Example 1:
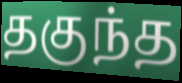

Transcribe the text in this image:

தகுந்த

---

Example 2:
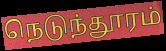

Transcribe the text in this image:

நெடுந்தூரம்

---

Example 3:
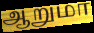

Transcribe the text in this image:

ஆறுமா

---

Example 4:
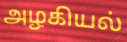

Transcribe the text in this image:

அழகியல்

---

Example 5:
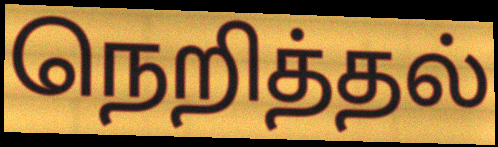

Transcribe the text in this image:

நெறித்தல்